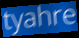
tyahre